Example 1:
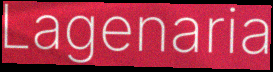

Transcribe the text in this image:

Lagenaria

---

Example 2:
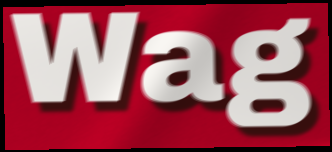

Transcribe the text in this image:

Wag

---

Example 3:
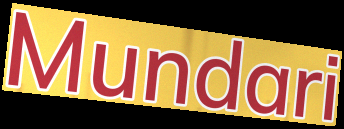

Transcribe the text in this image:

Mundari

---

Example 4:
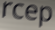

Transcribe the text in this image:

rcep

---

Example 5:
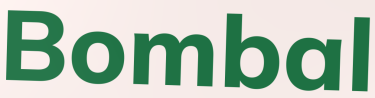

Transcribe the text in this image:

Bombal